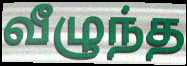
வீழுந்த